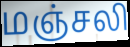
மஞ்சலி